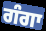
ਗੰਗਾ